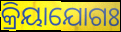
କ୍ରିୟାଯୋଗଃ